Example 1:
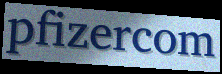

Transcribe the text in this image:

pfizercom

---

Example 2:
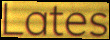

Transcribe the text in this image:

Lates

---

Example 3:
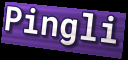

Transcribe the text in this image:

Pingli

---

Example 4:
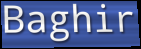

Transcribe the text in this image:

Baghir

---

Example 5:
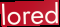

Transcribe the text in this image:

lored